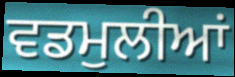
ਵਡਮੁਲੀਆਂ